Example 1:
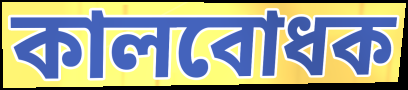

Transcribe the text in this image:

কালবোধক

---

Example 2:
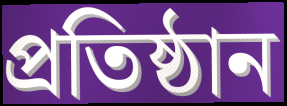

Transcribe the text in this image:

প্ৰতিষ্ঠান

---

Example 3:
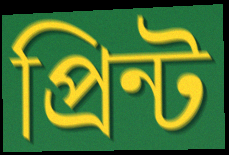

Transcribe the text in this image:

প্ৰিন্ট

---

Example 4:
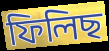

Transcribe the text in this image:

ফিলিছ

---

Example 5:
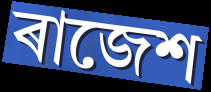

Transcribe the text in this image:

ৰাজেশ